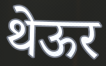
थेऊर